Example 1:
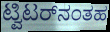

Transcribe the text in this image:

ಟ್ವಿಟರ್‌ನಂತಹ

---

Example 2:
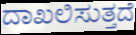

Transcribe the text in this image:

ದಾಖಲಿಸುತ್ತದೆ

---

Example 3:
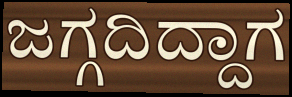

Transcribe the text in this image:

ಜಗ್ಗದಿದ್ದಾಗ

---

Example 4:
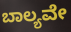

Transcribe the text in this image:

ಬಾಲ್ಯವೇ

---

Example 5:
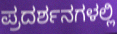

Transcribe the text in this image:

ಪ್ರದರ್ಶನಗಳಲ್ಲಿ